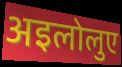
अइलोलुए